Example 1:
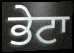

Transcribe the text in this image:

ਭੇਟਾ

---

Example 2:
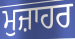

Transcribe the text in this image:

ਮੁਜ਼ਾਹਰ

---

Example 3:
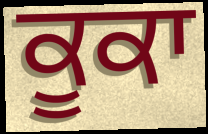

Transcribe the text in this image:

ਕੂਕਾ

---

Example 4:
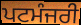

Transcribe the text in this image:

ਪਟਮੰਜਰੀ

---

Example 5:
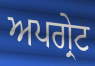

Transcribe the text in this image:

ਅਪਗ੍ਰੇਟ